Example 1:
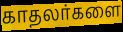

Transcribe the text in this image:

காதலர்களை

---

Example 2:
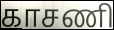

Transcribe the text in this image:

காசணி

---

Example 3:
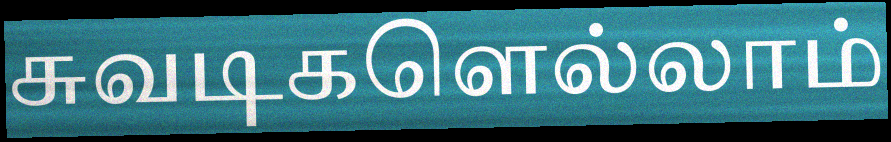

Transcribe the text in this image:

சுவடிகளெல்லாம்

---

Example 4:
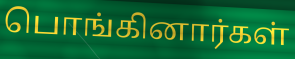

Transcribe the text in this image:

பொங்கினார்கள்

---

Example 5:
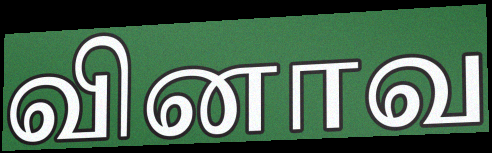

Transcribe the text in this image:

வினாவ